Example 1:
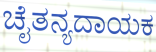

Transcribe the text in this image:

ಚೈತನ್ಯದಾಯಕ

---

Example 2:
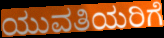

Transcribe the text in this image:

ಯುವತಿಯರಿಗೆ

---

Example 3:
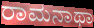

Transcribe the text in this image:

ರಾಮನಾಥಾ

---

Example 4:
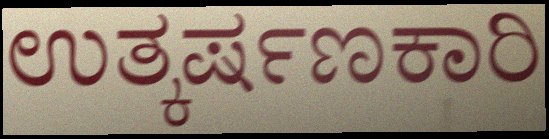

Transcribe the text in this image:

ಉತ್ಕರ್ಷಣಕಾರಿ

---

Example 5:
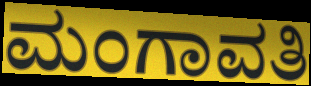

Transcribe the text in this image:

ಮಂಗಾವತಿ